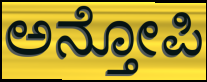
ಅನ್ತೋಪಿ